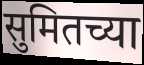
सुमितच्या